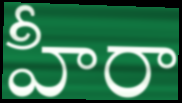
హీరా